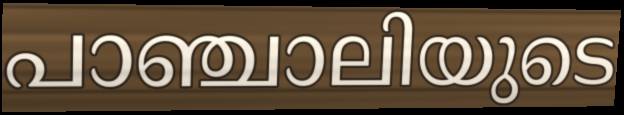
പാഞ്ചാലിയുടെ